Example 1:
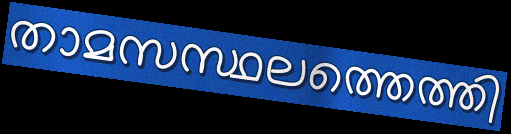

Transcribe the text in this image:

താമസസ്ഥലത്തെത്തി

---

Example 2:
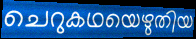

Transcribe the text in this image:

ചെറുകഥയെഴുതിയ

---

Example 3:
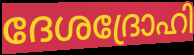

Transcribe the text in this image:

ദേശദ്രോഹി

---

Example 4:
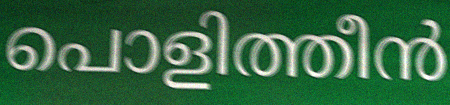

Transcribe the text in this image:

പൊളിത്തീൻ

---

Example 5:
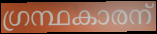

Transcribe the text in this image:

ഗ്രന്ഥകാരന്